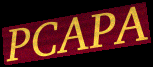
PCAPA